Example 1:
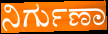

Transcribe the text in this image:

ನಿರ್ಗುಣಾ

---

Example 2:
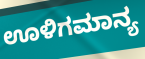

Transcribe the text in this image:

ಊಳಿಗಮಾನ್ಯ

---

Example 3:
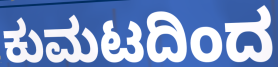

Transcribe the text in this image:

ಕುಮಟದಿಂದ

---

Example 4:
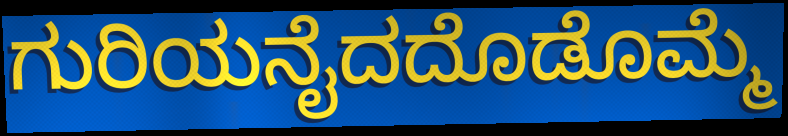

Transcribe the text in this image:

ಗುರಿಯನೈದದೊಡೊಮ್ಮೆ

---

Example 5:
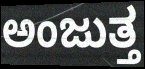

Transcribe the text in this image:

ಅಂಜುತ್ತ